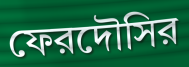
ফেরদৌসির